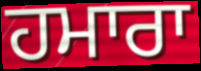
ਹਮਾਰਾ